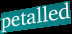
petalled